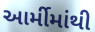
આર્મીમાંથી